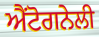
ਐਂਟੋਗਨੇਲੀ